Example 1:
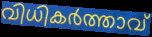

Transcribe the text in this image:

വിധികർത്താവ്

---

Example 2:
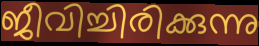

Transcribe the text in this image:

ജീവിച്ചിരിക്കുന്നു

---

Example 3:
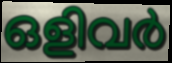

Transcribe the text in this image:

ഒളിവർ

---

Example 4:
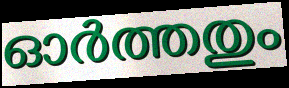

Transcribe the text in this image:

ഓർത്തതും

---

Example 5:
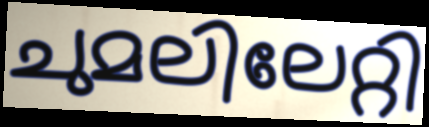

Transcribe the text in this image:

ചുമലിലേറ്റി